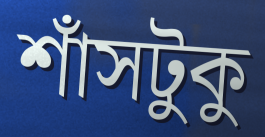
শাঁসটুকু